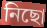
নিছো